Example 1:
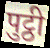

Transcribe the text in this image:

पुट्ठी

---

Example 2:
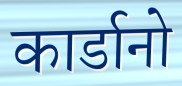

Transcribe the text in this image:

कार्डानो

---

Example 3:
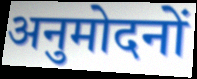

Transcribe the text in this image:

अनुमोदनों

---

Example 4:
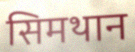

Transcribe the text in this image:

सिमथान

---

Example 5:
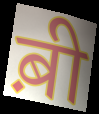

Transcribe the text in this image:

ब़ी